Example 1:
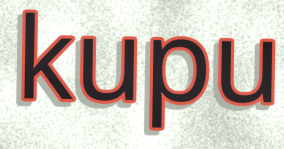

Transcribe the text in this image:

kupu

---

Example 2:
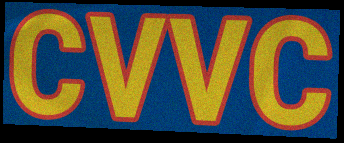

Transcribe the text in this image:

CVVC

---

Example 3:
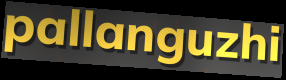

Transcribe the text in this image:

pallanguzhi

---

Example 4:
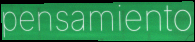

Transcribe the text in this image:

pensamiento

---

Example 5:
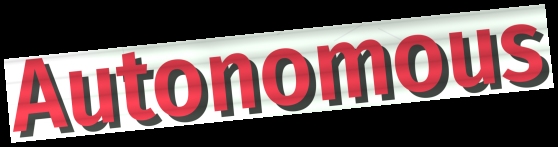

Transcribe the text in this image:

Autonomous